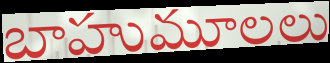
బాహుమూలలు